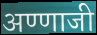
अण्णाजी